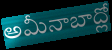
అమీనాబాద్లో